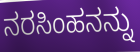
ನರಸಿಂಹನನ್ನು